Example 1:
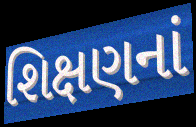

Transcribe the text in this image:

શિક્ષણનાં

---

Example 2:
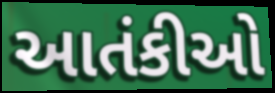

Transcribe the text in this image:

આતંકીઓ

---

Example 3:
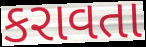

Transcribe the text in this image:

કરાવતા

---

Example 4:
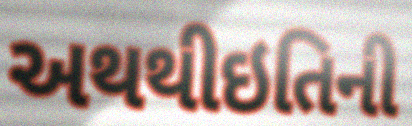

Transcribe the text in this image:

અથથીઇતિની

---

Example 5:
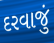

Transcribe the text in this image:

દરવાજું